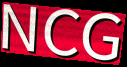
NCG